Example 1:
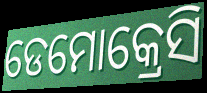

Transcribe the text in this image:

ଡେମୋକ୍ରେସି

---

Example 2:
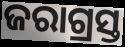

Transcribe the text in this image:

ଜରାଗ୍ରସ୍ତ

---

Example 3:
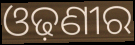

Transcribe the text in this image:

ଓଢ଼ଣୀର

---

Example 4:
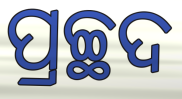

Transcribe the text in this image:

ପ୍ରଚ୍ଛଦ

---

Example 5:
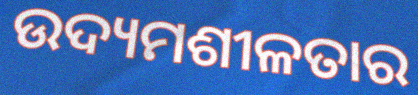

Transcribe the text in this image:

ଉଦ୍ୟମଶୀଳତାର